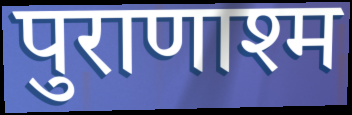
पुराणाश्म